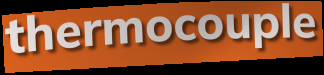
thermocouple